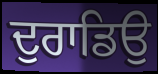
ਦੁਰਾਡਿਉ